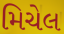
મિચેલ